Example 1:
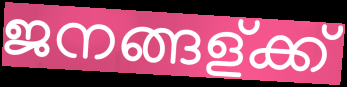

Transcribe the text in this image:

ജനങ്ങള്ക്ക്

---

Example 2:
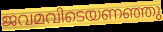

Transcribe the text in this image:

ജവമവിടെയണഞ്ഞു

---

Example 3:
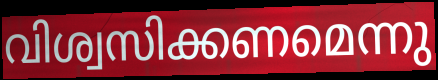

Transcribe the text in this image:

വിശ്വസിക്കണമെന്നു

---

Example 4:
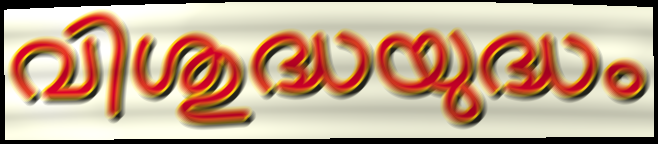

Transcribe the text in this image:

വിശുദ്ധയുദ്ധം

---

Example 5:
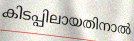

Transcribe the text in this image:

കിടപ്പിലായതിനാൽ